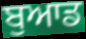
ਬੁਆਡ